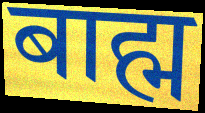
बाह्म